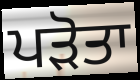
ਪੜੋਤਾ